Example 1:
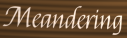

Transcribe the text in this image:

Meandering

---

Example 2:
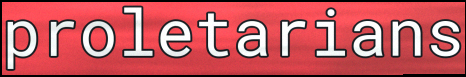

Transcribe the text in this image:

proletarians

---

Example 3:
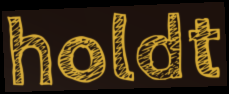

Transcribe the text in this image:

holdt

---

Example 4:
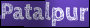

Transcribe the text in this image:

Patalpur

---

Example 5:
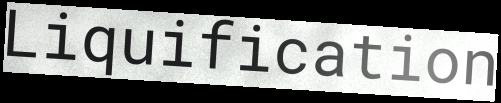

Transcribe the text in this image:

Liquification